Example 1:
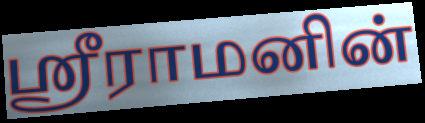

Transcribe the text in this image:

ஸ்ரீராமனின்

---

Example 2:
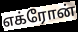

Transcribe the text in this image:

எக்ரோன்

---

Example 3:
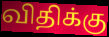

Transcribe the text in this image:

விதிக்கு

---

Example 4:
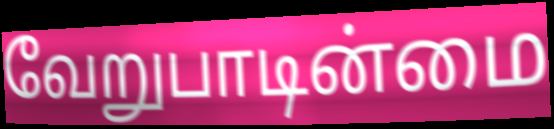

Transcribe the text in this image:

வேறுபாடின்மை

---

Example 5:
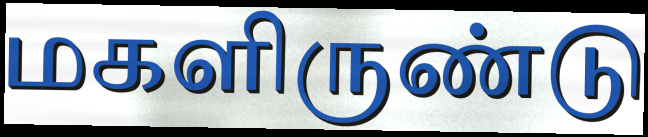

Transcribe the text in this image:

மகளிருண்டு